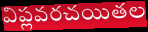
విప్లవరచయితల